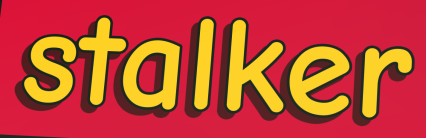
stalker